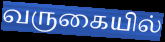
வருகையில்